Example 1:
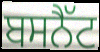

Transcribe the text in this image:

ਬਸਨੈੱਟ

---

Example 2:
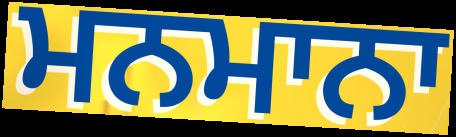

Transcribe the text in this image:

ਮਨਮਾਨਾ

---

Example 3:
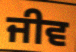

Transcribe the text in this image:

ਜੀਵ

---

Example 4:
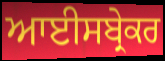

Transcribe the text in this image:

ਆਈਸਬ੍ਰੇਕਰ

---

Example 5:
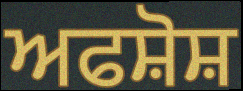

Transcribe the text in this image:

ਅਫਸ਼ੋਸ਼